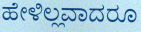
ಹೇಳಿಲ್ಲವಾದರೂ